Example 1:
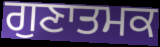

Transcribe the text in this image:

ਗੁਣਾਤਮਕ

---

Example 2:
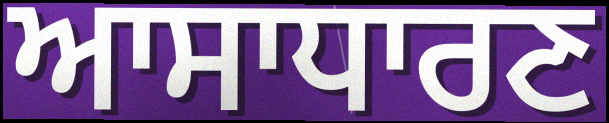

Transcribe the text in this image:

ਆਸਾਧਾਰਣ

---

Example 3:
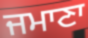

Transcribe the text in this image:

ਜਮਾਣਾ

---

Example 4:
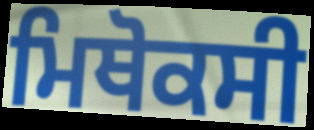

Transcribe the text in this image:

ਮਿਥੋਕਸੀ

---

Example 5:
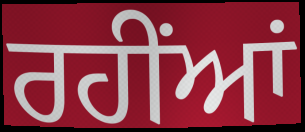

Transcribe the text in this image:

ਰਹੀਂਆਂ